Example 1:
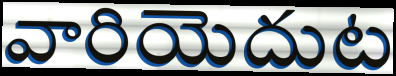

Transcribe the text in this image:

వారియెదుట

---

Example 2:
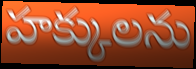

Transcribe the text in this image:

హక్కులను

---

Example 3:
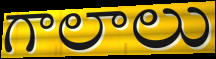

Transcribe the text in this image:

గాలాలు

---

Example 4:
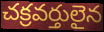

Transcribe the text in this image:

చక్రవర్తులైన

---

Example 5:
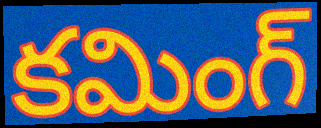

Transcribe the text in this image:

కమింగ్